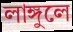
লাঙ্গুলে